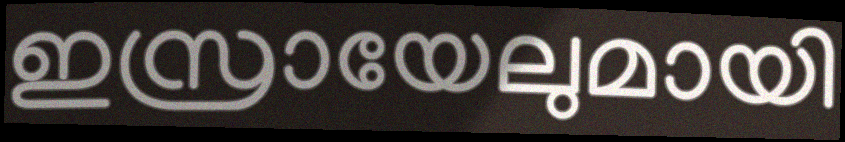
ഇസ്രായേലുമായി